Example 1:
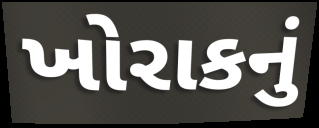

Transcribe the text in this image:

ખોરાકનું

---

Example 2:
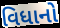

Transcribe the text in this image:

વિધાનો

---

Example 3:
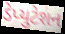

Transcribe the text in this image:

ડેપ્યુટેશન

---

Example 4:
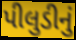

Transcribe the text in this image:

પીલુડીનું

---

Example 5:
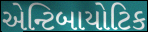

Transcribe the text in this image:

એન્ટિબાયોટિક